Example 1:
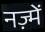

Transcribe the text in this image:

नज़्में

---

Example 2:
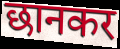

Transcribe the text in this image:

छानकर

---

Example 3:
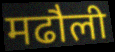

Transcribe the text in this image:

मढौली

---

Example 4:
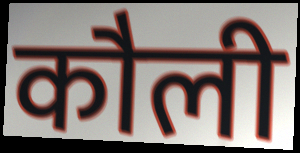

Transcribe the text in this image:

कौली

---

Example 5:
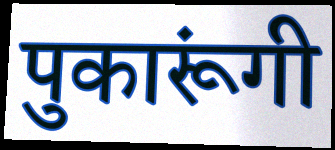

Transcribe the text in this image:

पुकारूंगी